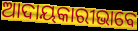
ଆଦାୟକାରୀଭାବେ